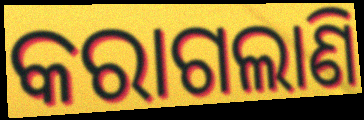
କରାଗଲାଣି